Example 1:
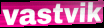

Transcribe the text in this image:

vastvik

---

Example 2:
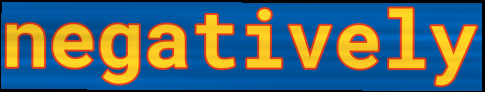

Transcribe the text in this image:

negatively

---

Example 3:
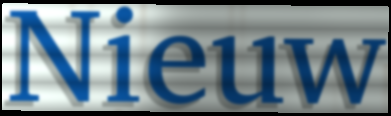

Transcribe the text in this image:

Nieuw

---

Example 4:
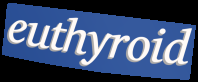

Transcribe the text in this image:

euthyroid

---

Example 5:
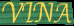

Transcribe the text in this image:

VINA